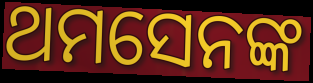
ଥମସେନଙ୍କ